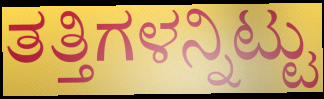
ತತ್ತಿಗಳನ್ನಿಟ್ಟು